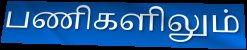
பணிகளிலும்